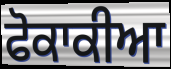
ਫੋਕਾਕੀਆ